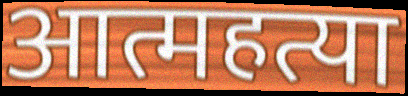
आत्महत्या